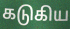
கடுகிய